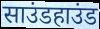
साउंडहाउंड